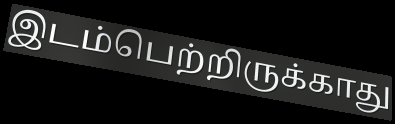
இடம்பெற்றிருக்காது